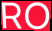
RO